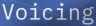
Voicing